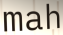
mah